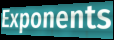
Exponents